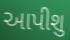
આપીશુ